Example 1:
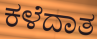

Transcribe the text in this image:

ಕಳೆದಾತ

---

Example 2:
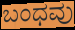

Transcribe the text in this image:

ಬಂಧವು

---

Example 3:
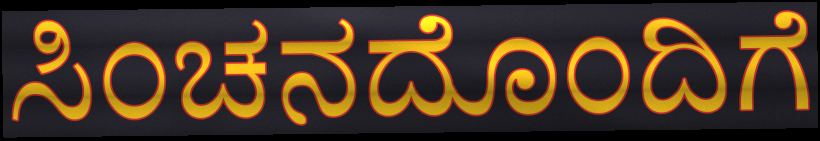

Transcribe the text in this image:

ಸಿಂಚನದೊಂದಿಗೆ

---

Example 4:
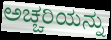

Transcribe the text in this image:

ಅಚ್ಚರಿಯನ್ನು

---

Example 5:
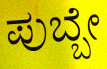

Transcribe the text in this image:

ಪುಬ್ಬೇ